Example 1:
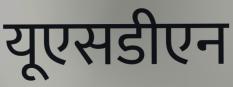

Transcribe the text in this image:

यूएसडीएन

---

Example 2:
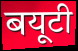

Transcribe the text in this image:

बयूटी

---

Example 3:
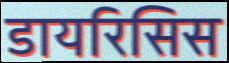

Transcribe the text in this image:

डायरिसिस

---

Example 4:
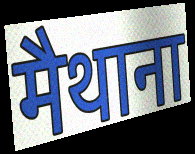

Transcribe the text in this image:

मैथाना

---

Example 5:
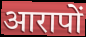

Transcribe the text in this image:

आरापों